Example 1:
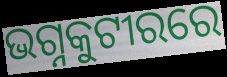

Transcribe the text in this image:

ଭଗ୍ନକୁଟୀରରେ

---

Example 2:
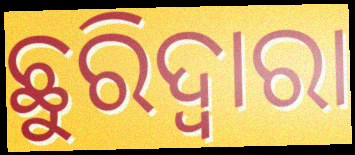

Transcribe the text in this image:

ଛୁରିଦ୍ୱାରା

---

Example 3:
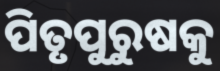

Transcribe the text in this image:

ପିତୃପୁରୁଷକୁ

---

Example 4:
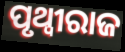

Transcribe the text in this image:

ପୃଥ୍ବୀରାଜ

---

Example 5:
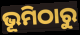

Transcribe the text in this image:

ଭୂମିଠାରୁ